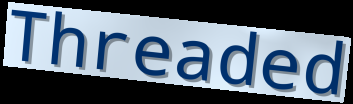
Threaded